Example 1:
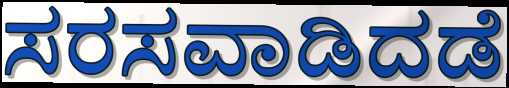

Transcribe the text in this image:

ಸರಸವಾಡಿದಡೆ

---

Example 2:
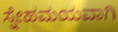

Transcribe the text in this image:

ಸ್ನೇಹಮಯವಾಗಿ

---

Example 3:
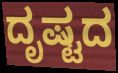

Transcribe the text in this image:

ದೃಷ್ಟದ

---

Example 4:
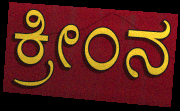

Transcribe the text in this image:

ಕ್ರೀಂನ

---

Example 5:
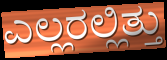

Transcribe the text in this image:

ಎಲ್ಲರಲ್ಲಿತ್ತು